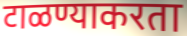
टाळण्याकरता